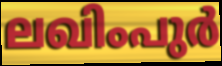
ലഖിംപുർ